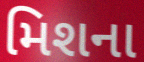
મિશના